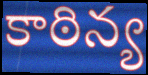
కాఠిన్య